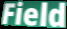
Field